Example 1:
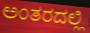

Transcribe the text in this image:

ಅಂತರದಲ್ಲಿ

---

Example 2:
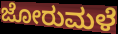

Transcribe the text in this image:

ಜೋರುಮಳೆ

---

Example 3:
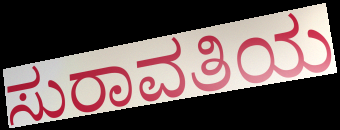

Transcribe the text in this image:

ಸುರಾವತಿಯ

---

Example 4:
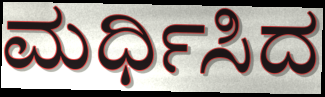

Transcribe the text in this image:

ಮರ್ಧಿಸಿದ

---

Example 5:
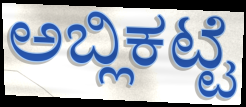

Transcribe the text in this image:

ಅಬ್ಲಿಕಟ್ಟೆ